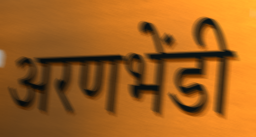
अरणभेंडी